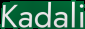
Kadali